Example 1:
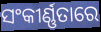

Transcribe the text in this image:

ସଂକୀର୍ଣ୍ଣତାରେ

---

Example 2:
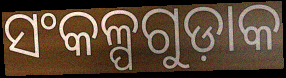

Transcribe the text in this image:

ସଂକଳ୍ପଗୁଡ଼ାକ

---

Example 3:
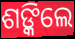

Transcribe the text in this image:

ଶଙ୍କିଲେ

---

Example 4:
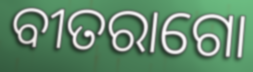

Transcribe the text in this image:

ବୀତରାଗୋ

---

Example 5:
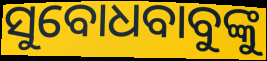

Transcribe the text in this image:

ସୁବୋଧବାବୁଙ୍କୁ